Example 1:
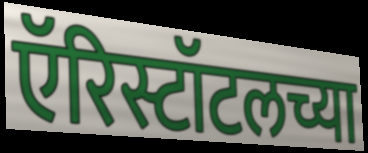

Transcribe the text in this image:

ऍरिस्टॉटलच्या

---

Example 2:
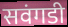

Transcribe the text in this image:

सवंगडी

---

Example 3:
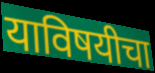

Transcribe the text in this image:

याविषयीचा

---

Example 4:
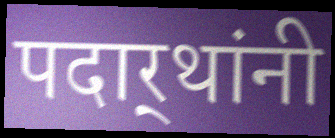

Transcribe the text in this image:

पदार्थांनी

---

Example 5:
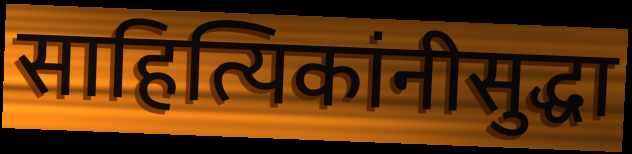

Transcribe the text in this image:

साहित्यिकांनीसुद्धा